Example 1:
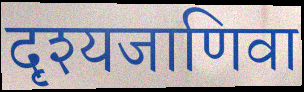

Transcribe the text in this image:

दृश्यजाणिवा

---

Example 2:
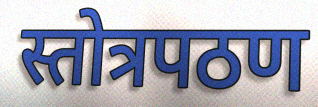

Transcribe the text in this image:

स्तोत्रपठण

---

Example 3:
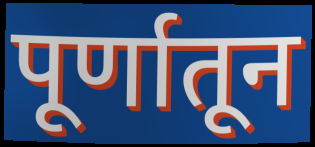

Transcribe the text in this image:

पूर्णातून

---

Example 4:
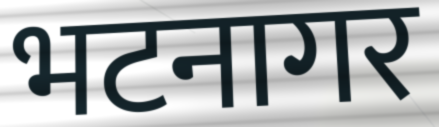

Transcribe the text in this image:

भटनागर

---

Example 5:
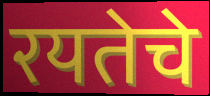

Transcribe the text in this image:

रयतेचे